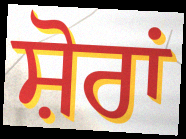
ਸ਼ੋਰਾਂ